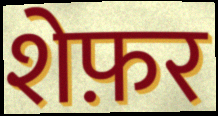
शेफ़र